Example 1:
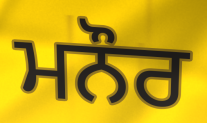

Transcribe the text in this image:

ਮਨੌਰ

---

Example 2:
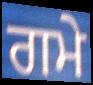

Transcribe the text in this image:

ਗਮੇ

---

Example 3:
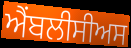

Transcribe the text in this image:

ਐਂਬਲੀਸੀਅਸ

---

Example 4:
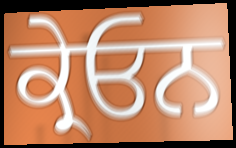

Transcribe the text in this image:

ਕ੍ਰੇਓਨ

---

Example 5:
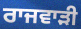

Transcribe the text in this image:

ਰਾਜਵਾੜੀ